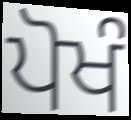
ਪੋਖੰ